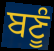
ਬਣੂੰ